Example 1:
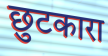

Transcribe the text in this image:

छुटकारा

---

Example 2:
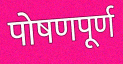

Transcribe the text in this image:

पोषणपूर्ण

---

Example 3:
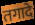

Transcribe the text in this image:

तगादे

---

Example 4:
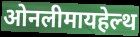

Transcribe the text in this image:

ओनलीमायहेल्थ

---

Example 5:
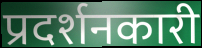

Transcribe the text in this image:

प्रदर्शनकारी